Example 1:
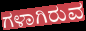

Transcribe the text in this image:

ಗಳಾಗಿರುವ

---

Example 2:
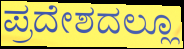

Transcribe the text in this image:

ಪ್ರದೇಶದಲ್ಲೂ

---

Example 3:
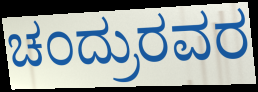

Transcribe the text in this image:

ಚಂದ್ರುರವರ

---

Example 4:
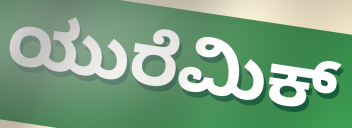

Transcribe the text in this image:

ಯುರೆಮಿಕ್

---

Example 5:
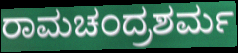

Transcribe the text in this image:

ರಾಮಚಂದ್ರಶರ್ಮ